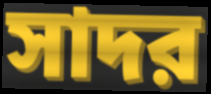
সাদর